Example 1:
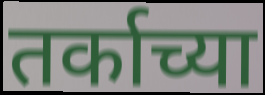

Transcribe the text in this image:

तर्काच्या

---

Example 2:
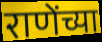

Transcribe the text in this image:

राणेंच्या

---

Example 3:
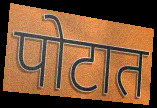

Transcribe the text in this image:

पोटात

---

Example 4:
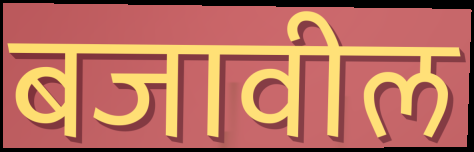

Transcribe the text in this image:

बजावील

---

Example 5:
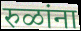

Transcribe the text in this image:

रुळांना